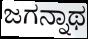
ಜಗನ್ನಾಥ